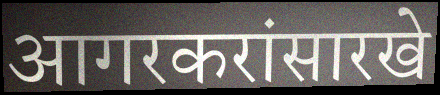
आगरकरांसारखे